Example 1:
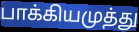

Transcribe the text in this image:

பாக்கியமுத்து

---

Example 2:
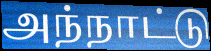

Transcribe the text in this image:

அந்நாட்டு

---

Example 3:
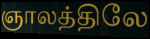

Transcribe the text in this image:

ஞாலத்திலே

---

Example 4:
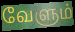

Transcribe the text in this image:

வேளும்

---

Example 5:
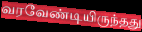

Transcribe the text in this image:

வரவேண்டியிருந்தது